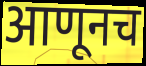
आणूनच